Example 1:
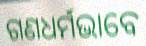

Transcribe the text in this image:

ଗଣଧର୍ମଭାବେ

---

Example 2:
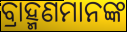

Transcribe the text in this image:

ବ୍ରାହ୍ମଣମାନଙ୍କ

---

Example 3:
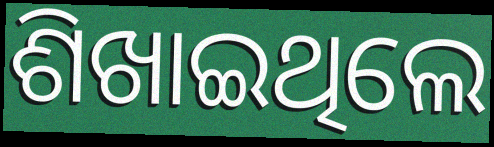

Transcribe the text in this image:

ଶିଖାଇଥିଲେ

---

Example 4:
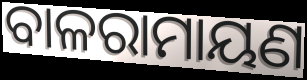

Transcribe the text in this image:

ବାଳରାମାୟଣ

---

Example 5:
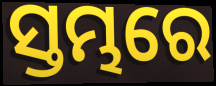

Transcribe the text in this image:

ସ୍ତମ୍ଭରେ